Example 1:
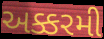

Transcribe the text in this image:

અક્કરમી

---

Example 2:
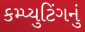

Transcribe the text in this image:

કમ્પ્યુટિંગનું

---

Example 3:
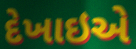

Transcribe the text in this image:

દેખાઇએ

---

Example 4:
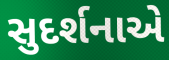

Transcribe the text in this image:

સુદર્શનાએ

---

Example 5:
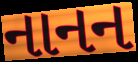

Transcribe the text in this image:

નાનન